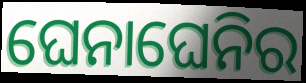
ଘେନାଘେନିର